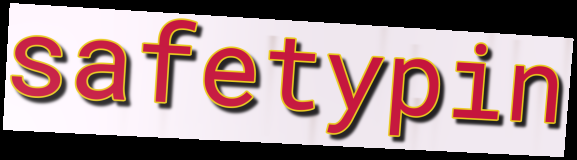
safetypin